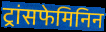
ट्रांसफेमिनिन